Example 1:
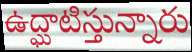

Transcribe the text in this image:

ఉద్ఘాటిస్తున్నారు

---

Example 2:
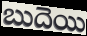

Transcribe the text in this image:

బుదెయి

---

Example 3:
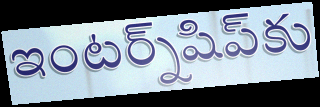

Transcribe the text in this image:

ఇంటర్న్‌షిప్‌కు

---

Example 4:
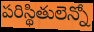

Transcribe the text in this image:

పరిస్థితులెన్నో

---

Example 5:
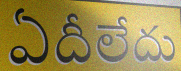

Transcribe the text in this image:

ఏదీలేదు